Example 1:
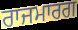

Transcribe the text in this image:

ਰਾਜਮਾਰਗ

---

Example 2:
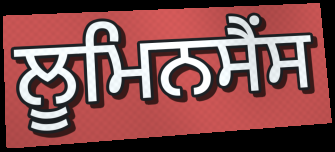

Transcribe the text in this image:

ਲੂਮਿਨਸੈਂਸ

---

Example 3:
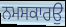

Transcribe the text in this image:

ਨਮਸਕਾਰਉ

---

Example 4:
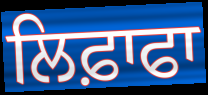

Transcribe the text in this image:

ਲਿਫ਼ਾਫਾ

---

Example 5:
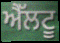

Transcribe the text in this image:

ਐੱਲਟੂ